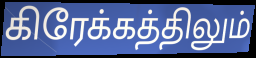
கிரேக்கத்திலும்